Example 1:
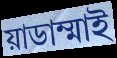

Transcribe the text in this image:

য়াডাম্মাই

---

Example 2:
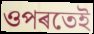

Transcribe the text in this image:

ওপৰতেই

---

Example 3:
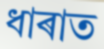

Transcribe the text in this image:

ধাৰাত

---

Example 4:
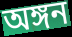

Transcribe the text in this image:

অঙ্গন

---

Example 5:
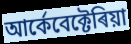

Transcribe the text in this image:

আৰ্কেবেক্টেৰিয়া